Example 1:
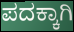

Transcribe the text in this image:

ಪದಕ್ಕಾಗಿ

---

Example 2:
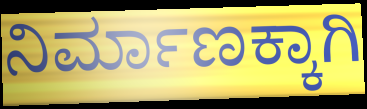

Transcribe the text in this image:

ನಿರ್ಮಾಣಕ್ಕಾಗಿ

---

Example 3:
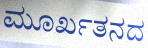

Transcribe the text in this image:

ಮೂರ್ಖತನದ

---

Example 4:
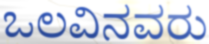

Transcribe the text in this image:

ಒಲವಿನವರು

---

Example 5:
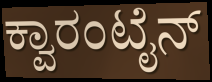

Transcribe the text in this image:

ಕ್ವಾರಂಟೈನ್